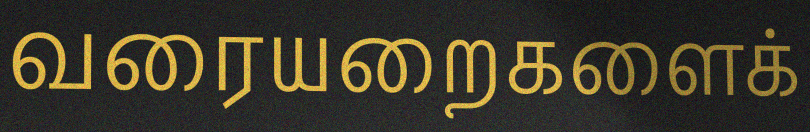
வரையறைகளைக்